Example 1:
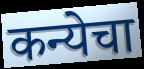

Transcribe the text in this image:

कन्येचा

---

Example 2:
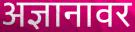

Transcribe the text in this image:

अज्ञानावर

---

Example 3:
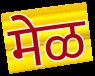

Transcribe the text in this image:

मेळ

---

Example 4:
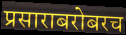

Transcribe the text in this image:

प्रसाराबरोबरच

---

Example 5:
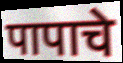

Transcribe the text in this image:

पापाचे